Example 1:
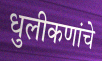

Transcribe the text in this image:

धुलीकणांचे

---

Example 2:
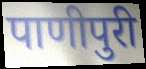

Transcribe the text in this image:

पाणीपुरी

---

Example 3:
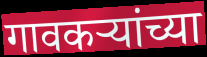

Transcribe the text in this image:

गावकर्‍यांच्या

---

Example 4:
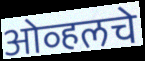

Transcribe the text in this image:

ओव्हलचे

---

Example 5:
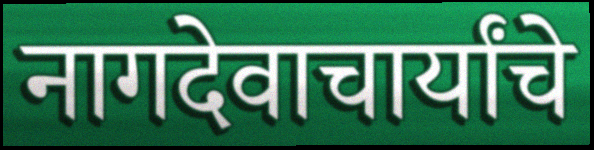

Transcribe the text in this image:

नागदेवाचार्यांचे